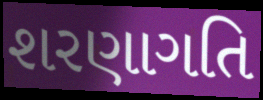
શરણાગતિ